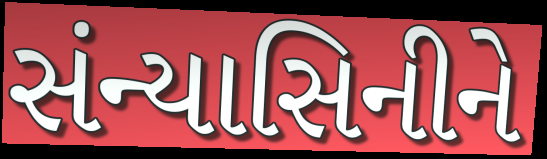
સંન્યાસિનીને